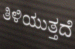
ತಿಳಿಯುತ್ತದೆ